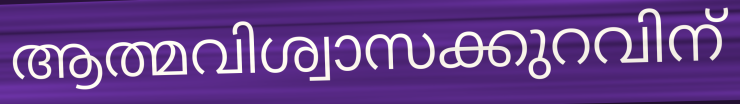
ആത്മവിശ്വാസക്കുറവിന്